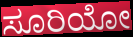
ಸೂರಿಯೋ